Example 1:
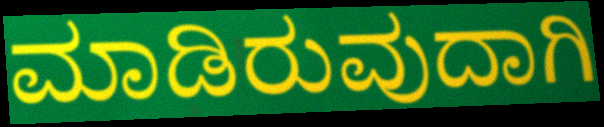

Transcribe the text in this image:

ಮಾಡಿರುವುದಾಗಿ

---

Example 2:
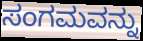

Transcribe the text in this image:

ಸಂಗಮವನ್ನು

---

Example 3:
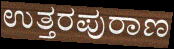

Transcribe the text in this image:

ಉತ್ತರಪುರಾಣ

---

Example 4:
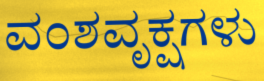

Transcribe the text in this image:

ವಂಶವೃಕ್ಷಗಳು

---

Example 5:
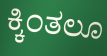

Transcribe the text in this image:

ಕ್ಕಿಂತಲೂ